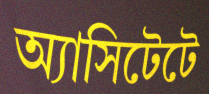
অ্যাসিটেটে